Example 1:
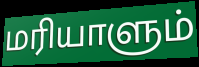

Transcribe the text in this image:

மரியாளும்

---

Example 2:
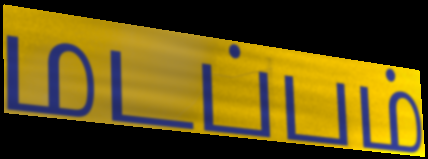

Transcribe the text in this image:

மடப்பம்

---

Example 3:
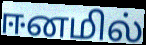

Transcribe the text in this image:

ஈனமில்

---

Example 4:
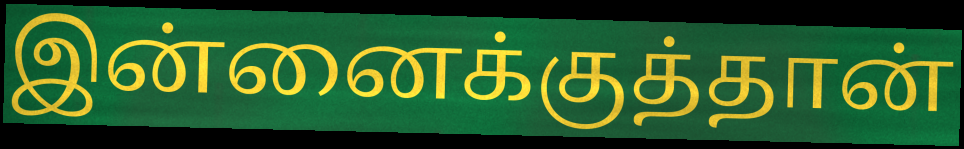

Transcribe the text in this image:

இன்னைக்குத்தான்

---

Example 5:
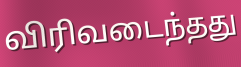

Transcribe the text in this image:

விரிவடைந்தது